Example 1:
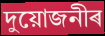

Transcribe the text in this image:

দুয়োজনীৰ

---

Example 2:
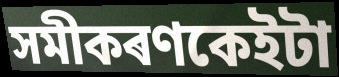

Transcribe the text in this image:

সমীকৰণকেইটা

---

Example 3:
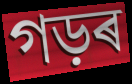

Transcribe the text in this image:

গড়ৰ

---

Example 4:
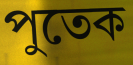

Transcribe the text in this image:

পুতেক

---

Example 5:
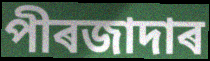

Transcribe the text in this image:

পীৰজাদাৰ